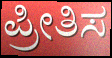
ಪ್ರೀತಿಸ